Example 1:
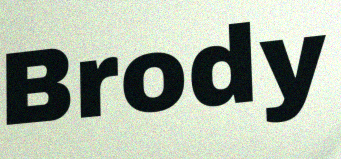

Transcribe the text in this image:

Brody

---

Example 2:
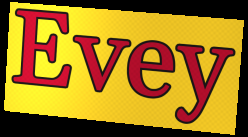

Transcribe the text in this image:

Evey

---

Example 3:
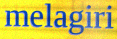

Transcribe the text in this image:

melagiri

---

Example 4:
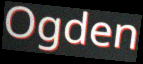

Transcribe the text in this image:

Ogden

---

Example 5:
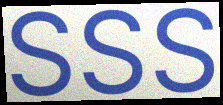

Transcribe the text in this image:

SSS